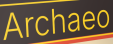
Archaeo